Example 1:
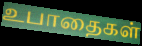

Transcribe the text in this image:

உபாதைகள்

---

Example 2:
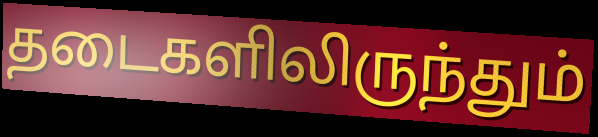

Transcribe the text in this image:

தடைகளிலிருந்தும்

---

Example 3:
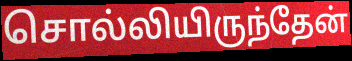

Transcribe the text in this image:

சொல்லியிருந்தேன்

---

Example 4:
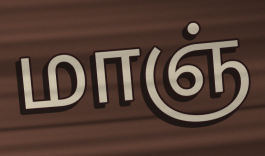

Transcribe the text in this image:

மாஞ்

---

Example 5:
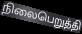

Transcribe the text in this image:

நிலைபெறுத்தி